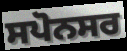
ਸਪੋਨਸਰ